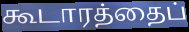
கூடாரத்தைப்